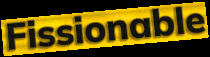
Fissionable